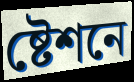
ষ্টেশনে